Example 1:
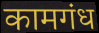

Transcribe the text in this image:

कामगंध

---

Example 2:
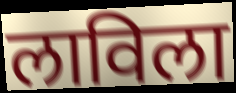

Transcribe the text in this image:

लाविला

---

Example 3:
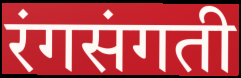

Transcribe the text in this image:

रंगसंगती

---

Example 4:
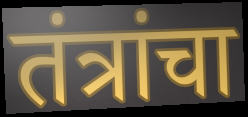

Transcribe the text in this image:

तंत्रांचा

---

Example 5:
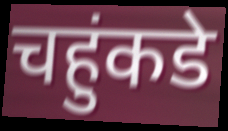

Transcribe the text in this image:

चहुंकडे